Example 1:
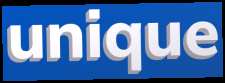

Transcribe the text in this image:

unique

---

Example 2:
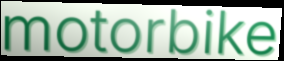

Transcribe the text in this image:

motorbike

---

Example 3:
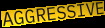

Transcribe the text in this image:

AGGRESSIVE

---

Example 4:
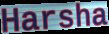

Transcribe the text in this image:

Harsha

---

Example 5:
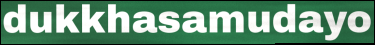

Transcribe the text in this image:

dukkhasamudayo